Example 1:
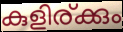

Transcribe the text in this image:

കുളിര്ക്കും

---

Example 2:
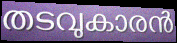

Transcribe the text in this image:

തടവുകാരൻ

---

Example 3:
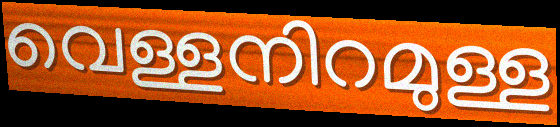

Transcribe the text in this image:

വെള്ളനിറമുള്ള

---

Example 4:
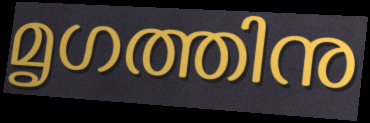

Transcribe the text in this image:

മൃഗത്തിനു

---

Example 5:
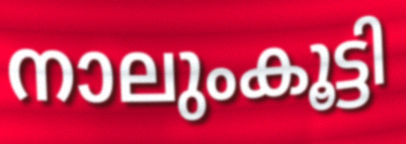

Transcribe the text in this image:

നാലുംകൂട്ടി